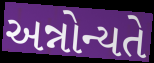
અન્નોન્યતે